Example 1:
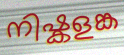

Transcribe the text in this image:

നിഷ്കളങ്ക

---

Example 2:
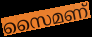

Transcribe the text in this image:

സൈമണ്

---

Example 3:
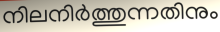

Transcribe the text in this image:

നിലനിർത്തുന്നതിനും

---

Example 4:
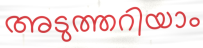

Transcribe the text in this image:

അടുത്തറിയാം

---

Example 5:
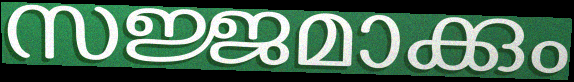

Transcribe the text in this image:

സജ്ജമാക്കും